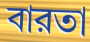
বারতা